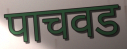
पाचवड